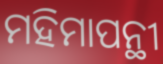
ମହିମାପନ୍ଥୀ